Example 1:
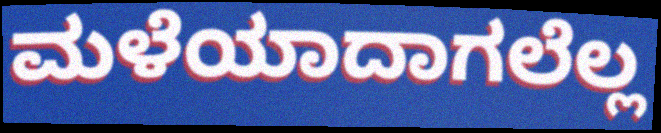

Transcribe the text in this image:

ಮಳೆಯಾದಾಗಲೆಲ್ಲ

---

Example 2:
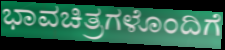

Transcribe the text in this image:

ಭಾವಚಿತ್ರಗಳೊಂದಿಗೆ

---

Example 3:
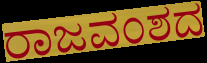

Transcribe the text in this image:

ರಾಜವಂಶದ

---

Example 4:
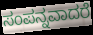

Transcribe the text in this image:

ಸಂಪನ್ನವಾದರೆ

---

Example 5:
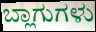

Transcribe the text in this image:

ಬ್ಲಾಗುಗಳು